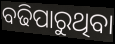
ବଢିପାରୁଥିବା